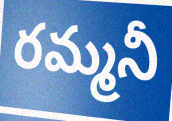
రమ్మనీ